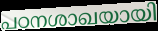
പഠനശാഖയായി